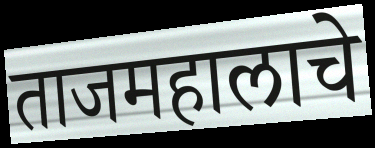
ताजमहालाचे